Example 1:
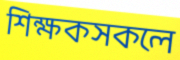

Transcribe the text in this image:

শিক্ষকসকলে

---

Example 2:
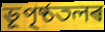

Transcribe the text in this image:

ভূপৃষ্ঠতলৰ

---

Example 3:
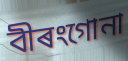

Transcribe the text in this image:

বীৰংগোনা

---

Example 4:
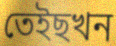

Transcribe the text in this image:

তেইছখন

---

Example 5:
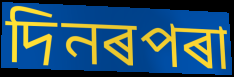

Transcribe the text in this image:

দিনৰপৰা